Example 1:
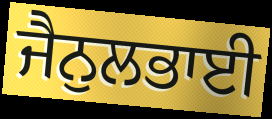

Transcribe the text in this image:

ਜੈਨੁਲਭਾਈ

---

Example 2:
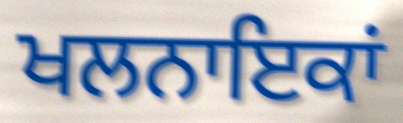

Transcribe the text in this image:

ਖਲਨਾਇਕਾਂ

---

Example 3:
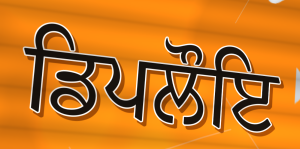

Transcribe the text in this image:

ਡਿਪਲੌਇ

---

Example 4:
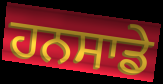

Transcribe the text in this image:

ਹਨਸਾਡੇ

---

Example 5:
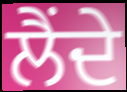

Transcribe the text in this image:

ਲੈਂਦੇ